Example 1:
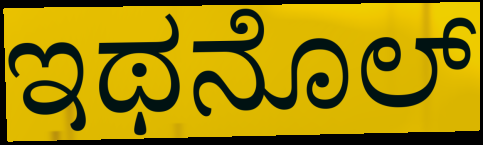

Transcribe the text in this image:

ಇಥನೊಲ್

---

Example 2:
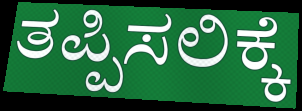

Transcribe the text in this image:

ತಪ್ಪಿಸಲಿಕ್ಕೆ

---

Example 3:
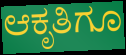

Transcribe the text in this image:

ಆಕೃತಿಗೂ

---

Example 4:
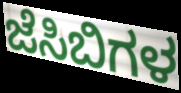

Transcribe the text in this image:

ಜೆಸಿಬಿಗಳ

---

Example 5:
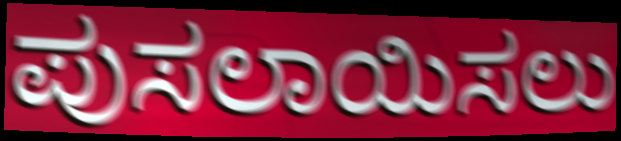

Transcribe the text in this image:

ಪುಸಲಾಯಿಸಲು